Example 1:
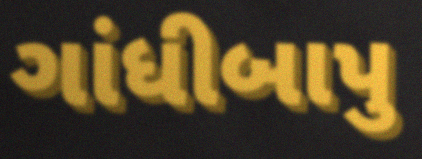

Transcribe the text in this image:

ગાંધીબાપુ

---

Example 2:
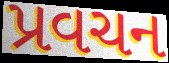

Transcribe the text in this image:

પ્રવચન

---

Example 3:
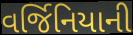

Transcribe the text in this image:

વર્જિનિયાની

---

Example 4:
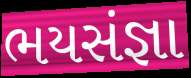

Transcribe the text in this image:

ભયસંજ્ઞા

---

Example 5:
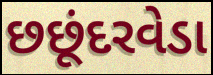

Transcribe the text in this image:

છછૂંદરવેડા